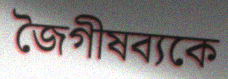
জৈগীষব্যকে